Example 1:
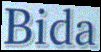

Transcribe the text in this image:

Bida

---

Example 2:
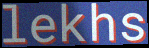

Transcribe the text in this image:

lekhs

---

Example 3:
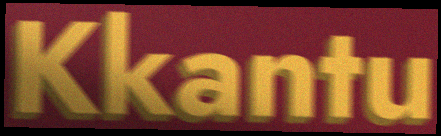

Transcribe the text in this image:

Kkantu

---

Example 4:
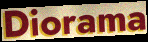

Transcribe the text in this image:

Diorama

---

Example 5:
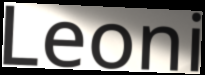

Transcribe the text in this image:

Leoni